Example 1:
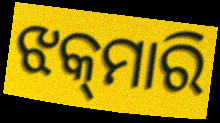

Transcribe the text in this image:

ଝକ୍‌ମାରି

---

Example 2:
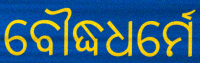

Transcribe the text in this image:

ବୌଦ୍ଧଧର୍ମେ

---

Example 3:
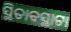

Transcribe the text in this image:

ସ୍ଥିତାବସ୍ଥାଟା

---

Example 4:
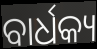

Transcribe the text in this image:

ବାର୍ଧକ୍ୟ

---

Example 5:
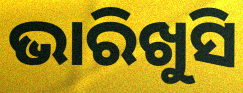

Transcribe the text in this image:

ଭାରିଖୁସି